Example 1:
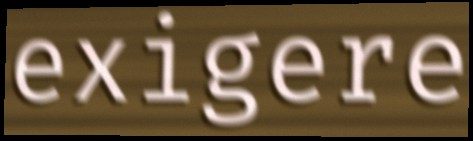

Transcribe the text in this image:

exigere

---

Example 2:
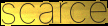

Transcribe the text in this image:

scarce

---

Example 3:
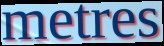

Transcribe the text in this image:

metres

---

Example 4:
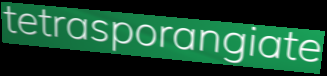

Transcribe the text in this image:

tetrasporangiate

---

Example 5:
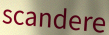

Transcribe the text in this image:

scandere